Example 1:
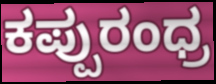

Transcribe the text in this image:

ಕಪ್ಪುರಂಧ್ರ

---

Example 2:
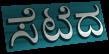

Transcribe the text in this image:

ಸೆಟೆದ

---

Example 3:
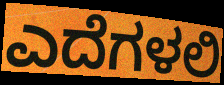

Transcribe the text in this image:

ಎದೆಗಳಲಿ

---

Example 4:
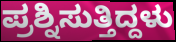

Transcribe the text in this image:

ಪ್ರಶ್ನಿಸುತ್ತಿದ್ದಳು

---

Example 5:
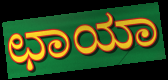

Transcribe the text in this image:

ಛಾಯಾ